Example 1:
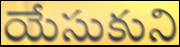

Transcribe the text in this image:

యేసుకుని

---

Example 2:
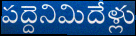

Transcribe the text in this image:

పద్దెనిమిదేళ్లు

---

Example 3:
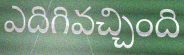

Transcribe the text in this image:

ఎదిగివచ్చింది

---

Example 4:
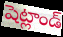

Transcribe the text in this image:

షెట్లాండ్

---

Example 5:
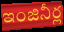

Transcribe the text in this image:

ఇంజినీర్ల